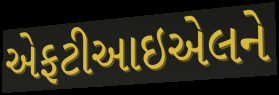
એફટીઆઇએલને